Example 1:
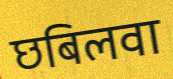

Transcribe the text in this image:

छबिलवा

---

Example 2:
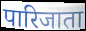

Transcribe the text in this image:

पारिजाता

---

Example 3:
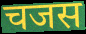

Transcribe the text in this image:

चजस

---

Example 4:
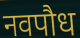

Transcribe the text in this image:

नवपौध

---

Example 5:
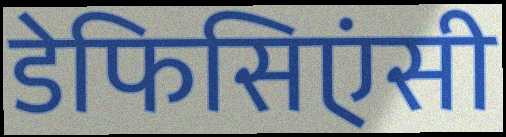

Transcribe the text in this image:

डेफिसिएंसी